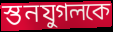
স্তনযুগলকে